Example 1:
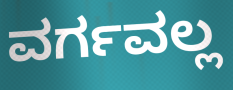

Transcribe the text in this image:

ವರ್ಗವಲ್ಲ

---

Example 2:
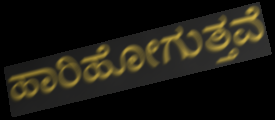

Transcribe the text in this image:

ಹಾರಿಹೋಗುತ್ತವೆ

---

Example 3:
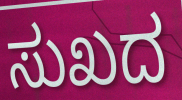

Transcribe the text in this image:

ಸುಖದ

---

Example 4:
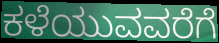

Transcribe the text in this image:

ಕಳೆಯುವವರೆಗೆ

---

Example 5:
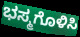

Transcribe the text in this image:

ಭಸ್ಮಗೊಳಿಸಿ